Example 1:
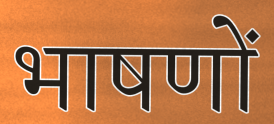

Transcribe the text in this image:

भाषणों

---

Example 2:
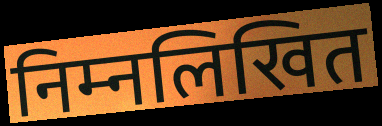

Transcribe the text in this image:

निम्नलिखित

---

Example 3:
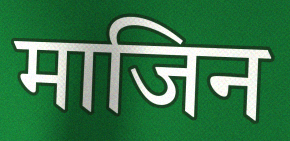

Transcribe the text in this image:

माजिन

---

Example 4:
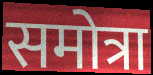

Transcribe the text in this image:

समोत्रा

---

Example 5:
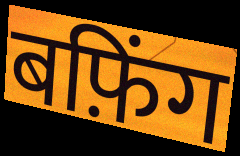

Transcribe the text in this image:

बफ़िंग